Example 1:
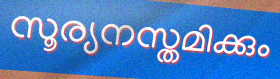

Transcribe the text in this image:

സൂര്യനസ്തമിക്കും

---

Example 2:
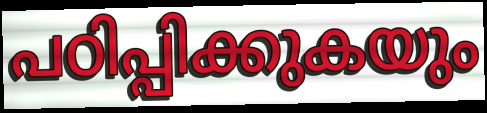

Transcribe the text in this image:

പഠിപ്പിക്കുകയും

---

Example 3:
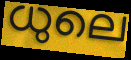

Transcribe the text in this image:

ധുലെ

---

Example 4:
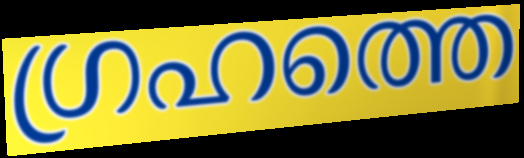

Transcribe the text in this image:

ഗ്രഹത്തെ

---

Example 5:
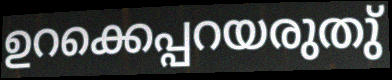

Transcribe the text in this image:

ഉറക്കെപ്പറയരുതു്